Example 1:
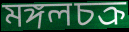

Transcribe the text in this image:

মঙ্গলচক্র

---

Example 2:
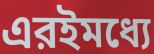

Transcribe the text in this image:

এরইমধ্যে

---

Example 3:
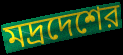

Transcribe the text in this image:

মদ্রদেশের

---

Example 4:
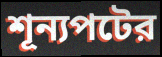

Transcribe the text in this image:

শূন্যপটের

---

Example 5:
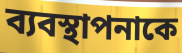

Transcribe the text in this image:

ব্যবস্থাপনাকে